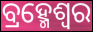
ବ୍ରହ୍ମେଶ୍ଵର